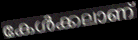
കേൾക്കലാണ്